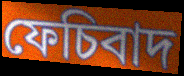
ফেচিবাদ